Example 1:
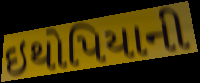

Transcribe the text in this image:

ઇથોપિયાની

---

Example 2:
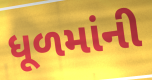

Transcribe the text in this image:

ધૂળમાંની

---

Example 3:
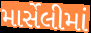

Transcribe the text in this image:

માર્સેલીમાં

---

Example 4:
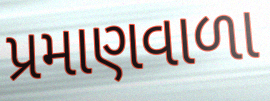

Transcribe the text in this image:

પ્રમાણવાળા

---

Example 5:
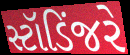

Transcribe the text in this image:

સ્ટૉડિંજરે